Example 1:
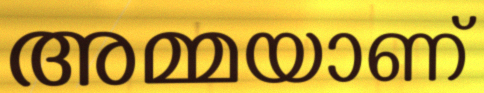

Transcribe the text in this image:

അമ്മയാണ്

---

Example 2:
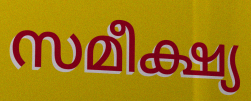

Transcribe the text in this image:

സമീക്ഷ്യ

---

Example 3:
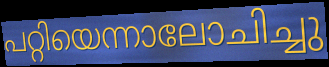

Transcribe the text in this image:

പറ്റിയെന്നാലോചിച്ചു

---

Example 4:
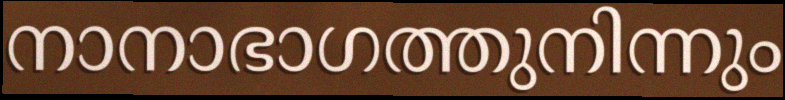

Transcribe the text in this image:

നാനാഭാഗത്തുനിന്നും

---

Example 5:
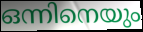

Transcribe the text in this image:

ഒന്നിനെയും